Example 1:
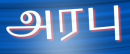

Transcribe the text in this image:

அரபு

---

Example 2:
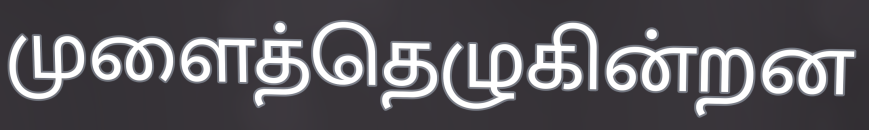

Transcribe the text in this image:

முளைத்தெழுகின்றன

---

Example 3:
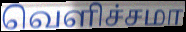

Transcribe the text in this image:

வெளிச்சமா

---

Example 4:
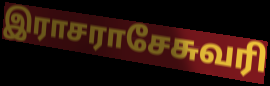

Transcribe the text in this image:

இராசராசேசுவரி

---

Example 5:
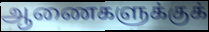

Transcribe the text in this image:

ஆணைகளுக்குக்